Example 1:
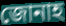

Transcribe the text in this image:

জোনাহ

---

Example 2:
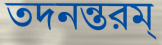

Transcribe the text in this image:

তদনন্তরম্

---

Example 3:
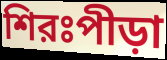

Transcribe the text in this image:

শিরঃপীড়া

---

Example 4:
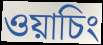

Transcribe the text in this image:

ওয়াচিং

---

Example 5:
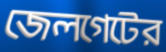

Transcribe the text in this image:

জেলগেটের